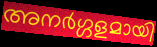
അനർഗ്ഗളമായി